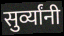
सुर्व्यांनी